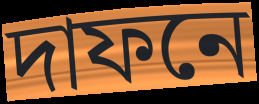
দাফনে